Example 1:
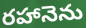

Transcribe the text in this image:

రహానెను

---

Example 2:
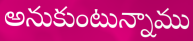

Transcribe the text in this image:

అనుకుంటున్నాము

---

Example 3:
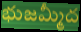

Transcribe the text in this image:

భుజమ్మీద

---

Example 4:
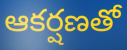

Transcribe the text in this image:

ఆకర్షణతో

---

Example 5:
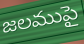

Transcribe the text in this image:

జలముపై